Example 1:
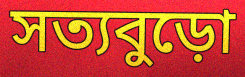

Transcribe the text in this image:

সত্যবুড়ো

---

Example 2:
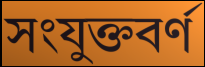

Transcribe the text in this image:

সংযুক্তবর্ণ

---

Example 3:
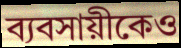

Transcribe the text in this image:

ব্যবসায়ীকেও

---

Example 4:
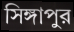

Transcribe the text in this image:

সিঙ্গাপুর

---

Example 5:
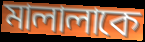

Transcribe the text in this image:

মালালাকে